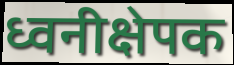
ध्वनीक्षेपक